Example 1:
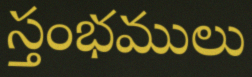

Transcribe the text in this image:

స్తంభములు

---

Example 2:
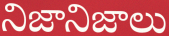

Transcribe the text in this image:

నిజానిజాలు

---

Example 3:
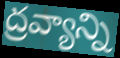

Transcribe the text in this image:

ద్రవ్యాన్ని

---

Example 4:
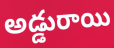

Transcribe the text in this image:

అడ్డురాయి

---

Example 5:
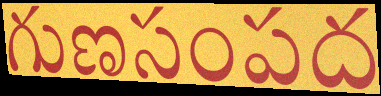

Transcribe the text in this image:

గుణసంపద